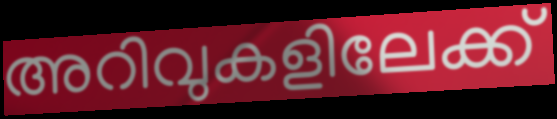
അറിവുകളിലേക്ക്